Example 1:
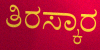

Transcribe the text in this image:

ತಿರಸ್ಕಾರ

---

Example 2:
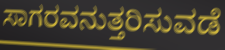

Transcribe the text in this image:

ಸಾಗರವನುತ್ತರಿಸುವಡೆ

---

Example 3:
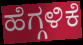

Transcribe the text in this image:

ಹೆಗ್ಗಳಿಕೆ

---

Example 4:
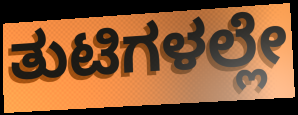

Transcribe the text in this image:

ತುಟಿಗಳಲ್ಲೇ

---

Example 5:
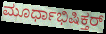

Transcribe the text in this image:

ಮೂರ್ಧಾಭಿಷಿಕ್ತರ್